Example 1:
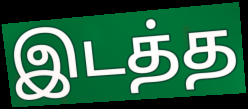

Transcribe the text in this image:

இடத்த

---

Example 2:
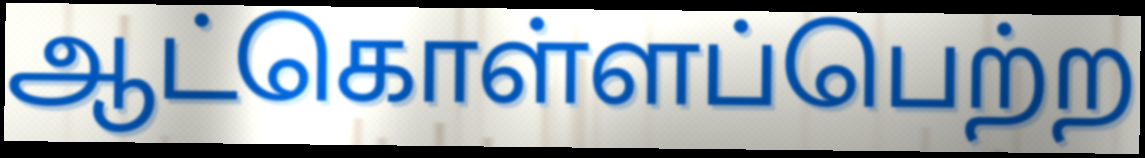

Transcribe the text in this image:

ஆட்கொள்ளப்பெற்ற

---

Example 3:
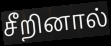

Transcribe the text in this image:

சீறினால்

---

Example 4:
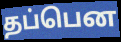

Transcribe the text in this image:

தப்பென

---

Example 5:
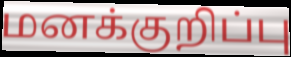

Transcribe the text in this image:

மனக்குறிப்பு